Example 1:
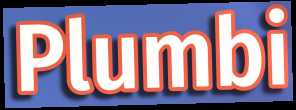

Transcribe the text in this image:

Plumbi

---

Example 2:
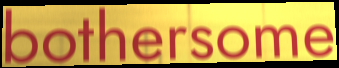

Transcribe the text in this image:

bothersome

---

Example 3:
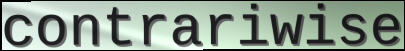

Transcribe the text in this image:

contrariwise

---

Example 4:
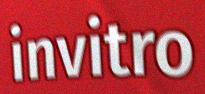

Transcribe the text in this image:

invitro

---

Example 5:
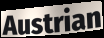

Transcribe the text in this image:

Austrian